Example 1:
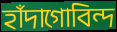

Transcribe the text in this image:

হাঁদাগোবিন্দ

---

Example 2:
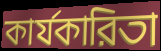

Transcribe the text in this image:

কার্যকারিতা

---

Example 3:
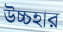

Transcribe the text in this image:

উচ্চহার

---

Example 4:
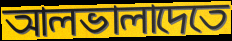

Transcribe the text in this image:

আলভালাদেতে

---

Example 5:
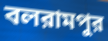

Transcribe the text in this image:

বলরামপুর